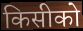
किसीको